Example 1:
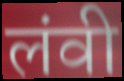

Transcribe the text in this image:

लंवी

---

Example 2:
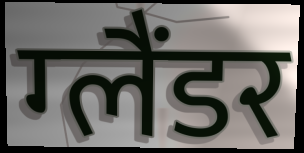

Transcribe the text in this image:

ग्लैंडर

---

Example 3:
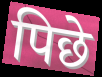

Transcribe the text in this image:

पिछे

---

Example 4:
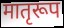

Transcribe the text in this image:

मातृरूप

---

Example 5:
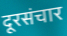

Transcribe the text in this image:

दूरसंचार